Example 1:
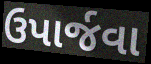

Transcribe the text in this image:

ઉપાર્જવા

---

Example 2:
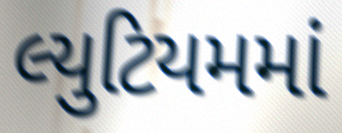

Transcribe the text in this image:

લ્યુટિયમમાં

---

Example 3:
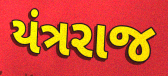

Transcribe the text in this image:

યંત્રરાજ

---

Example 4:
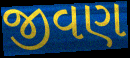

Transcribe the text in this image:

જીવણ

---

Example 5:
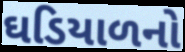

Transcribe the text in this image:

ઘડિયાળનો